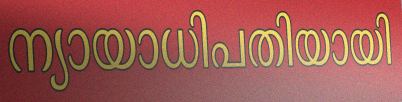
ന്യായാധിപതിയായി